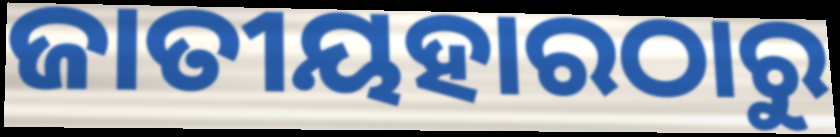
ଜାତୀୟହାରଠାରୁ